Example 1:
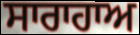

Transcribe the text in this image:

ਸਾਰਾਹਾਅ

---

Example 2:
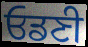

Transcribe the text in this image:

ਓਡਣੀ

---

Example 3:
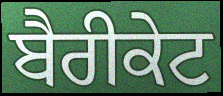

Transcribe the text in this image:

ਬੈਰੀਕੇਟ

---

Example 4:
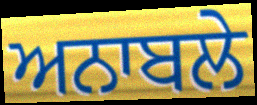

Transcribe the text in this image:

ਅਨਾਬਲੇ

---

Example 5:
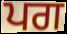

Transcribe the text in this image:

ਪਗ